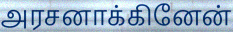
அரசனாக்கினேன்